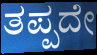
ತಪ್ಪದೇ